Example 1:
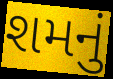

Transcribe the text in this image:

શમનું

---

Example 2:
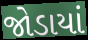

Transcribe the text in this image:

જોડાયાં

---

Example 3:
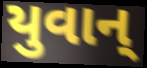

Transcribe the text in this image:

યુવાન્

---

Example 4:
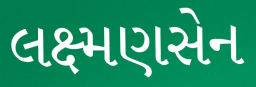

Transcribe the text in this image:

લક્ષ્મણસેન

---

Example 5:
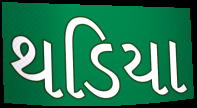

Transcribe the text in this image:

થડિયા